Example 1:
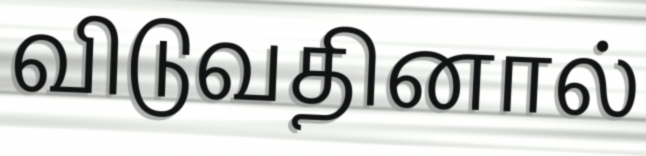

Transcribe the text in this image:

விடுவதினால்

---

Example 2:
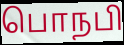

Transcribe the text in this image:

பொநபி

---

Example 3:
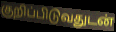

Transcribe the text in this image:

குறிப்பிடுவதுடன்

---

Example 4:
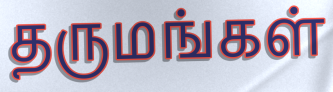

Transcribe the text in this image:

தருமங்கள்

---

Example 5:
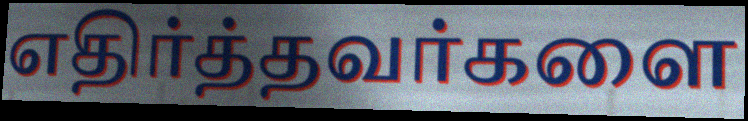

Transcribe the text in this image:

எதிர்த்தவர்களை